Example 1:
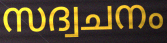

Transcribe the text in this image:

സദ്വചനം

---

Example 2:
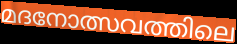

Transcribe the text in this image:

മദനോത്സവത്തിലെ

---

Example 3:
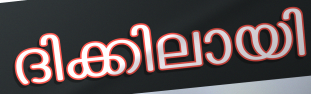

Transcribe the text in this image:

ദിക്കിലായി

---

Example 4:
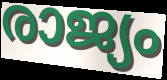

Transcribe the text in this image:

രാജ്യം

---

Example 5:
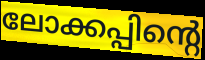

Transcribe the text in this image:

ലോക്കപ്പിന്റെ